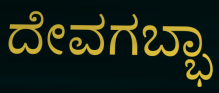
ದೇವಗಬ್ಭಾ